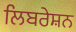
ਲਿਬਰੇਸ਼ਨ